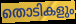
തൊടികളും